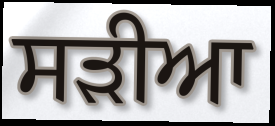
ਸੜੀਆ